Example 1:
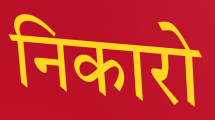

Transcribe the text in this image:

निकारो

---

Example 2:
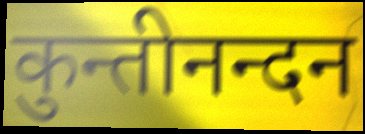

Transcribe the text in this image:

कुन्तीनन्दन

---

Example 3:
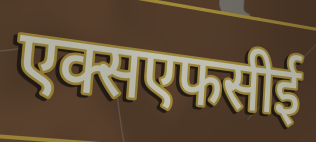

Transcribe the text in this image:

एक्सएफसीई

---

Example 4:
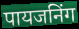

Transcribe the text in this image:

पायजनिंग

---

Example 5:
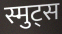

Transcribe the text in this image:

स्मुट्स